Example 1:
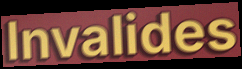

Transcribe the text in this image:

Invalides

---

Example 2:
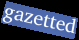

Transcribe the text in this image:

gazetted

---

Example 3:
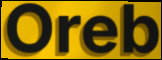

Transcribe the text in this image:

Oreb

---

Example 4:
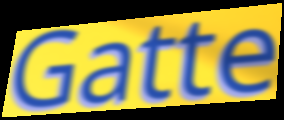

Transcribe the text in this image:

Gatte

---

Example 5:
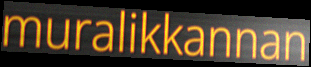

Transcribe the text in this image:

muralikkannan